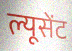
ल्यूसेंट